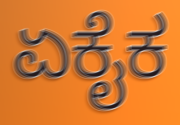
ಏಕೈಕ